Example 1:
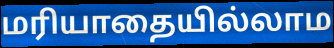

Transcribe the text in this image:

மரியாதையில்லாம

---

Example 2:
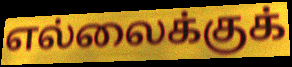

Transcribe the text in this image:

எல்லைக்குக்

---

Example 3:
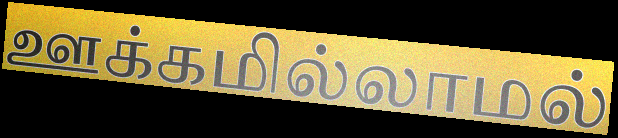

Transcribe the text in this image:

ஊக்கமில்லாமல்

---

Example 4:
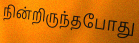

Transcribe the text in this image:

நின்றிருந்தபோது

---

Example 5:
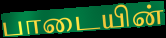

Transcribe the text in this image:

பாடையின்